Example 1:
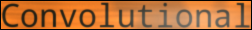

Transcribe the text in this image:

Convolutional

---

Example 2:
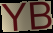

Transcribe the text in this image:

YB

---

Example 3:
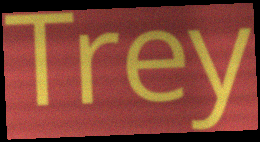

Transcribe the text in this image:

Trey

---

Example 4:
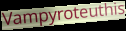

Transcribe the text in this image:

Vampyroteuthis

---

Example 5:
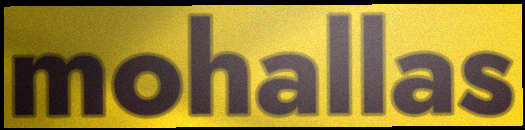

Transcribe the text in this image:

mohallas